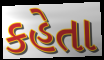
કહેતા